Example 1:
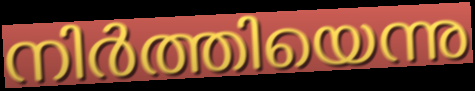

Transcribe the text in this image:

നിർത്തിയെന്നു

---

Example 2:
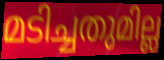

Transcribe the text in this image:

മടിച്ചതുമില്ല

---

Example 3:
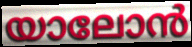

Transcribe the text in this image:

യാലോൻ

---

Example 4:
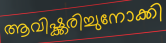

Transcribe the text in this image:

ആവിഷ്ക്കരിച്ചുനോക്കി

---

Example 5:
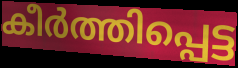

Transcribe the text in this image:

കീർത്തിപ്പെട്ട